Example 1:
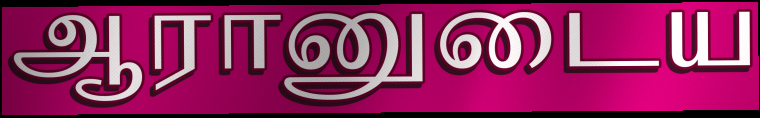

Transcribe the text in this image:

ஆரானுடைய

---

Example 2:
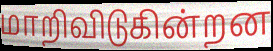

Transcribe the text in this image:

மாறிவிடுகின்றன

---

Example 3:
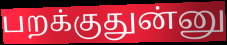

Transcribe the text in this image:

பறக்குதுன்னு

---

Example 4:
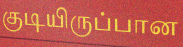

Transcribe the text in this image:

குடியிருப்பான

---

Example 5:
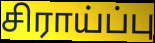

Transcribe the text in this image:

சிராய்ப்பு